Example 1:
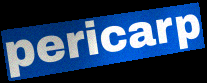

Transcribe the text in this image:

pericarp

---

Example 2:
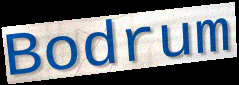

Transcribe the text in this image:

Bodrum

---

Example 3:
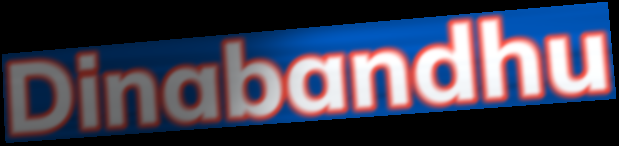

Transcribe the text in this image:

Dinabandhu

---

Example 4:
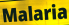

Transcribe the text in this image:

Malaria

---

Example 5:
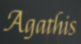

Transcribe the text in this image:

Agathis